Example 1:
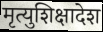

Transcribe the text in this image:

मृत्युशिक्षादेश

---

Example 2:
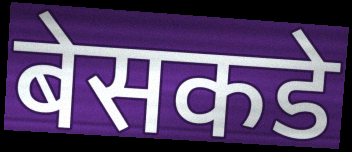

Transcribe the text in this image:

बेसकडे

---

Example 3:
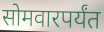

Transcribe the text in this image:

सोमवारपर्यंत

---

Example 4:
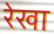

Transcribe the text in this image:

रेखा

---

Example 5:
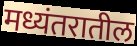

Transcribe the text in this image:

मध्यंतरातील